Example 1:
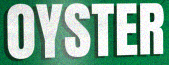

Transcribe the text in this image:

OYSTER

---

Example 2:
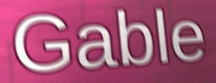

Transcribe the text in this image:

Gable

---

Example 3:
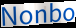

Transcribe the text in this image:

Nonbo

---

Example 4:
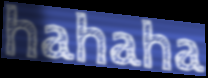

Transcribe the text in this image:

hahaha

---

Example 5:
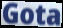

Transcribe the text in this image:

Gota